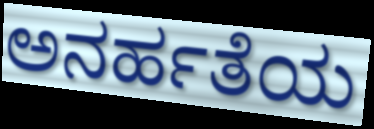
ಅನರ್ಹತೆಯ